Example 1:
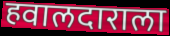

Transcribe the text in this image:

हवालदाराला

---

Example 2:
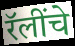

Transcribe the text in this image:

रॅलींचे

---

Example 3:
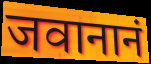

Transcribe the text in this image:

जवानानं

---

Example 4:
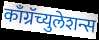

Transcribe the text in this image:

काँग्रॅच्युलेशन्स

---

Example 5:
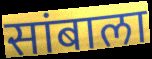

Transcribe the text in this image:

सांबाला